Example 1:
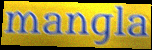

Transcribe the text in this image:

mangla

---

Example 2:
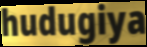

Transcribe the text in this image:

hudugiya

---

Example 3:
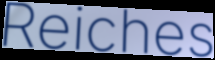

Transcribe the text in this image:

Reiches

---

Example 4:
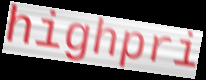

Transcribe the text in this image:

highpri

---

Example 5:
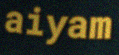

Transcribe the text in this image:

aiyam